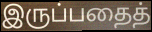
இருப்பதைத்